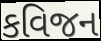
કવિજન